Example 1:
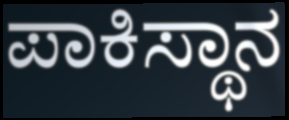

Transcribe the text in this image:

ಪಾಕಿಸ್ಥಾನ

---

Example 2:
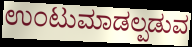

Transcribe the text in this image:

ಉಂಟುಮಾಡಲ್ಪಡುವ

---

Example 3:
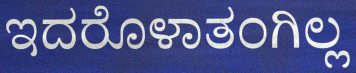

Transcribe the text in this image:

ಇದರೊಳಾತಂಗಿಲ್ಲ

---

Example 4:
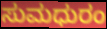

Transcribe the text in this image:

ಸುಮಧುರಂ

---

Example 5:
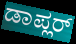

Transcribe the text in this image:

ಡಾಪ್ಲರ್